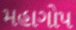
મહાગોપ